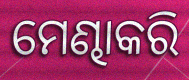
ମେଣ୍ଢାକରି